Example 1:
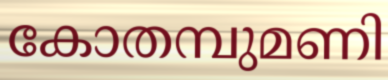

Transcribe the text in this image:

കോതമ്പുമണി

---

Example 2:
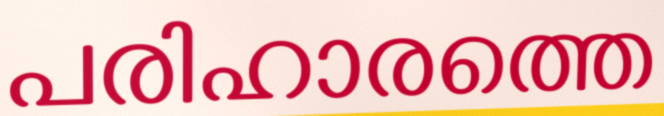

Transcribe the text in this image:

പരിഹാരത്തെ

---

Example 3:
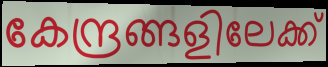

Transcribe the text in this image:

കേന്ദ്രങ്ങളിലേക്ക്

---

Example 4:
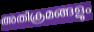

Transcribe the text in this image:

അതിക്രമങ്ങളും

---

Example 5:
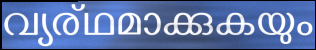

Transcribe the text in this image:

വ്യര്ഥമാക്കുകയും